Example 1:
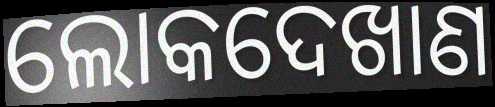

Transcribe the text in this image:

ଲୋକଦେଖାଣ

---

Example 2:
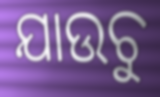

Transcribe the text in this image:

ଯାଉଚୁ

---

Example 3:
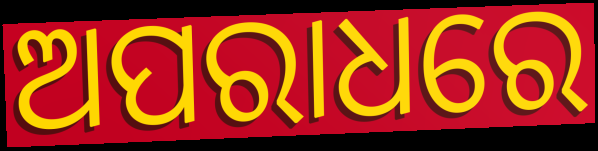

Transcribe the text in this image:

ଅପରାଧରେ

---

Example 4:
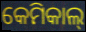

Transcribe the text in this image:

କେମିକାଲ୍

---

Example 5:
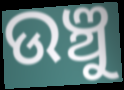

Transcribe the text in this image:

ଉଞ୍ଚୁ